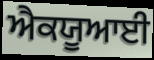
ਐਕਯੂਆਈ